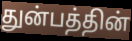
துன்பத்தின்